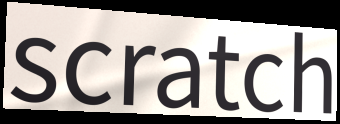
scratch